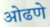
ओढणे